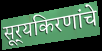
सूर्यकिरणांचे